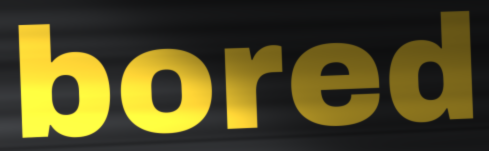
bored